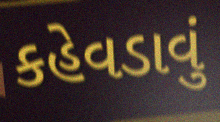
કહેવડાવું